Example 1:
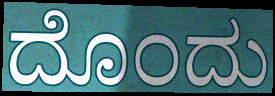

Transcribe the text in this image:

ದೊಂದು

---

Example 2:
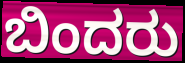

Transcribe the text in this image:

ಬಿಂದರು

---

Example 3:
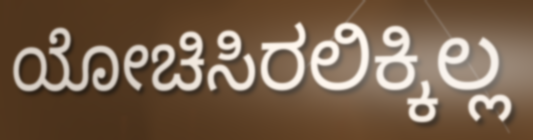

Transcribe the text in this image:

ಯೋಚಿಸಿರಲಿಕ್ಕಿಲ್ಲ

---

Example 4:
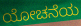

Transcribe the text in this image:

ಯೋಚನೆಯ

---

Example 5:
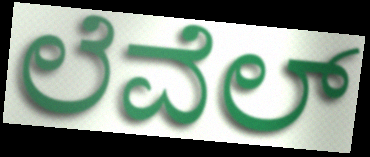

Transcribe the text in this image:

ಲೆವೆಲ್